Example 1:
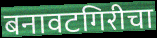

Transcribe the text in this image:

बनावटगिरीचा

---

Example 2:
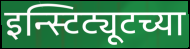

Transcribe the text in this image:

इन्स्टिट्यूटच्या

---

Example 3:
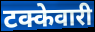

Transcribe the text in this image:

टक्केवारी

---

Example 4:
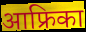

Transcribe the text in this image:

आफ्रिका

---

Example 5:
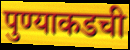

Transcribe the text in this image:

पुण्याकडची